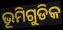
ଭୂମିଗୁଡିକ